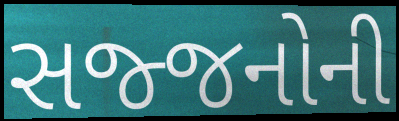
સજ્જનોની